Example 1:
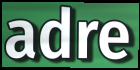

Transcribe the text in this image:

adre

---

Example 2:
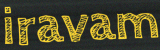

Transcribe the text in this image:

iravam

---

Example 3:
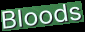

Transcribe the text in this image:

Bloods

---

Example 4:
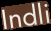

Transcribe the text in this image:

Indli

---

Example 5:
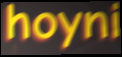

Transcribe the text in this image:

hoyni